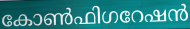
കോൺഫിഗറേഷൻ